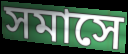
সমাসে